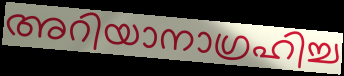
അറിയാനാഗ്രഹിച്ച